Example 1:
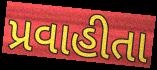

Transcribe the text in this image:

પ્રવાહીતા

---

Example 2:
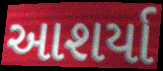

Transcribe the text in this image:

આશર્યા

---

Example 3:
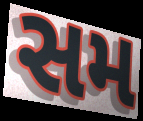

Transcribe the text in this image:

સમ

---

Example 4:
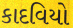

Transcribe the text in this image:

કાદવિયો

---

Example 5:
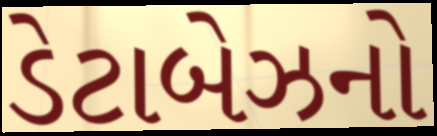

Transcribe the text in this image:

ડેટાબેઝનો